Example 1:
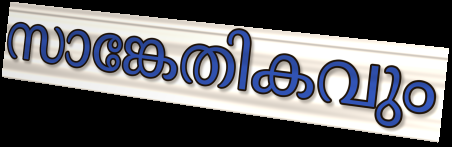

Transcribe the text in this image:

സാങ്കേതികവും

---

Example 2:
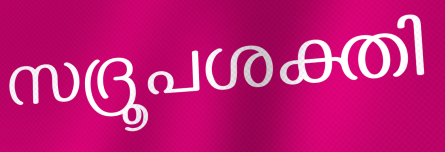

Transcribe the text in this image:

സദ്രൂപശക്തി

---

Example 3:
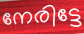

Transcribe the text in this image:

നേരിട്ടേ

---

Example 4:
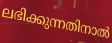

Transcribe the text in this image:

ലഭിക്കുന്നതിനാൽ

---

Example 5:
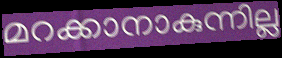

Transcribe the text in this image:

മറക്കാനാകുന്നില്ല